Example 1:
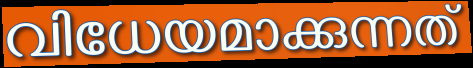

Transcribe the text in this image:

വിധേയമാക്കുന്നത്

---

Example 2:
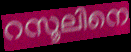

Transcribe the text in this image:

റസൂലിനെ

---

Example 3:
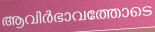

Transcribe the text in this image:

ആവിർഭാവത്തോടെ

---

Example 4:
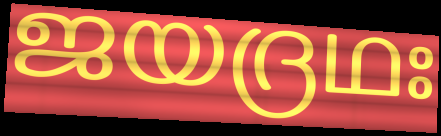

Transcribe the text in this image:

ജയദ്രഥഃ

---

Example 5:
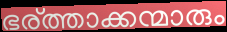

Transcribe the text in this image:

ഭര്ത്താക്കന്മാരും